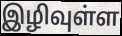
இழிவுள்ள